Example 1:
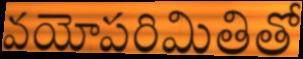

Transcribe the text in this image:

వయోపరిమితితో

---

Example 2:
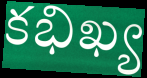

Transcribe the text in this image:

కభిఖ్య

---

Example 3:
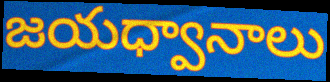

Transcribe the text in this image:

జయధ్వానాలు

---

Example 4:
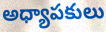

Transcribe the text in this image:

అధ్యాపకులు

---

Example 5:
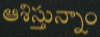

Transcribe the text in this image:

ఆశిస్తున్నాం